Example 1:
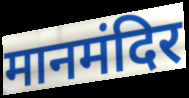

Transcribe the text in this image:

मानमंदिर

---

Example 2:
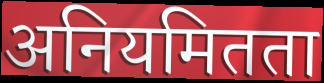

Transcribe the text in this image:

अनियमितता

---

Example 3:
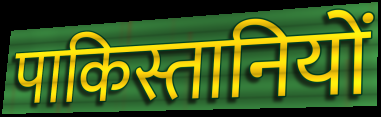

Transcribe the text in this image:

पाकिस्तानियों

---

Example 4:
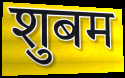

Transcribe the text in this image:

शुबम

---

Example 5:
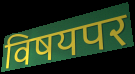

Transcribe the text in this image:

विषयपर